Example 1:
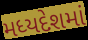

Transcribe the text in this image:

મધ્યદેશમાં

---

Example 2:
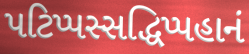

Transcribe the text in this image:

પટિપ્પસ્સદ્ધિપ્પહાનં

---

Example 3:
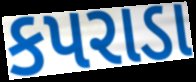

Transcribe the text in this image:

કપરાડા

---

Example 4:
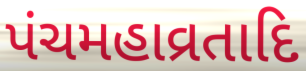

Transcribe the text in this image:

પંચમહાવ્રતાદિ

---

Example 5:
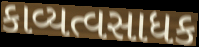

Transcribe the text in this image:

કાવ્યત્વસાધક